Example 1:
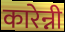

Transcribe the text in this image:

कारेन्नी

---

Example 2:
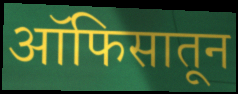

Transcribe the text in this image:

ऑफिसातून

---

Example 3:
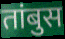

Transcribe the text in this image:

तांबुस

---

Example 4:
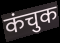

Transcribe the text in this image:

कंचुक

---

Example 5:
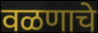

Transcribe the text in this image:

वळणाचे